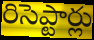
రిసెప్టార్లు